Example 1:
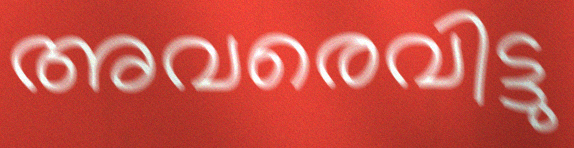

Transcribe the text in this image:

അവരെവിട്ടു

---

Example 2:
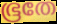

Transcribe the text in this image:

ഭൂതേ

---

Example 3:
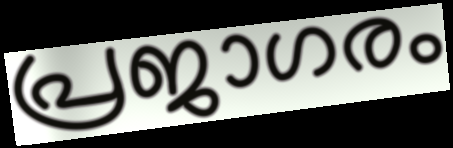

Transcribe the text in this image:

പ്രജാഗരം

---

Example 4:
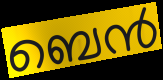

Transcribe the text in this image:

ബെൻ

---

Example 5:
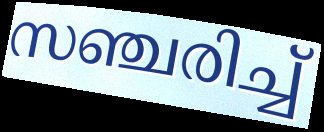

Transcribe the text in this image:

സഞ്ചരിച്ച്